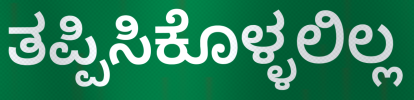
ತಪ್ಪಿಸಿಕೊಳ್ಳಲಿಲ್ಲ